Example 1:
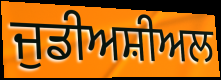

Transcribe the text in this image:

ਜੁਡੀਅਸ਼ੀਅਲ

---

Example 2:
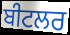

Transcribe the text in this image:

ਬੀਟਲਰ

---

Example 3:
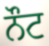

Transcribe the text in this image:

ਨੌਟ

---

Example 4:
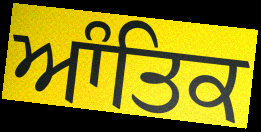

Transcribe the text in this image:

ਆੰਤਿਕ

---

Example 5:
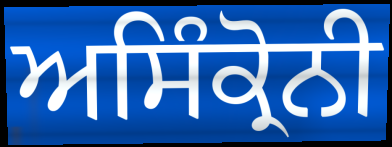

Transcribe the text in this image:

ਅਸਿੰਕ੍ਰੋਨੀ